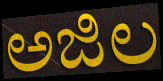
ಅಜಿಲ